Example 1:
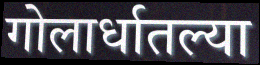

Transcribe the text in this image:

गोलार्धातल्या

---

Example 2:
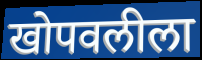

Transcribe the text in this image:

खोपवलीला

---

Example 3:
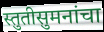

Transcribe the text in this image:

स्तुतीसुमनांचा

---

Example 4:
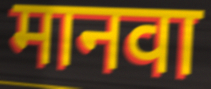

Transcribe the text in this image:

मानवा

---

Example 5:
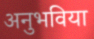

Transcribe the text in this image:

अनुभविया